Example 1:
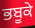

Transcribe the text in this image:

ਭਬੂਕੇ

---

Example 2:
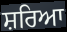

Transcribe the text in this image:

ਸ਼ਰਿਆ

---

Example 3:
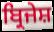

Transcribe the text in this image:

ਬ੍ਰਿਜੇਸ਼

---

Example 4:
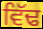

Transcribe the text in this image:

ਵਿੱਢ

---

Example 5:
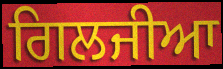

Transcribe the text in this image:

ਗਿਲਜੀਆ